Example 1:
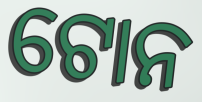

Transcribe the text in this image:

ଟୋନ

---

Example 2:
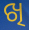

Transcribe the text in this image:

ଖି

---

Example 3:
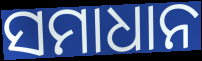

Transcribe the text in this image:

ସମାଧାନ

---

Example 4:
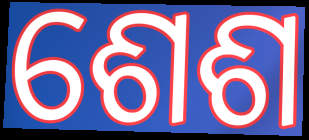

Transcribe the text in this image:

ଶେଶ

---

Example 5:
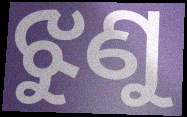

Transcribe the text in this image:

ଝୁଣୁ